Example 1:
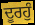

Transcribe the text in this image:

ਦੂਰਹੁੰ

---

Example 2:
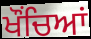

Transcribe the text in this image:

ਖੌਂਚਿਆਂ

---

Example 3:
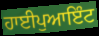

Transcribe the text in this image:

ਹਾਈਪੁਆਇੰਟ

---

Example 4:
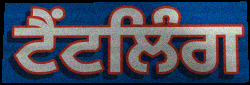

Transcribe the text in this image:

ਟੈਂਟਲਿੰਗ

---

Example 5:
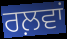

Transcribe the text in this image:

ਰਲ਼ਵਾਂ